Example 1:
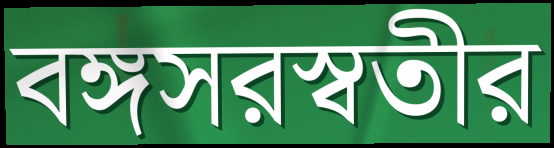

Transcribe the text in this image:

বঙ্গসরস্বতীর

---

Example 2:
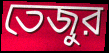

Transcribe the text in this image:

তেজুর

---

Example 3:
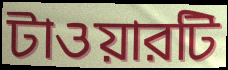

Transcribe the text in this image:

টাওয়ারটি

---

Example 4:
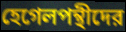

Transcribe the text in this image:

হেগেলপন্থীদের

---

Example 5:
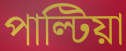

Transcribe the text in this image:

পাল্টিয়া